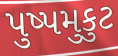
પુષ્પમુકુટ